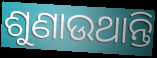
ଶୁଣାଉଥାନ୍ତି